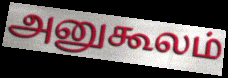
அனுகூலம்